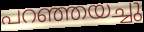
പറഞ്ഞയച്ചു